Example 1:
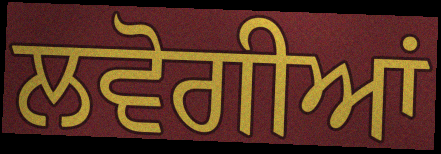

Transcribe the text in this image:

ਲਵੋਗੀਆਂ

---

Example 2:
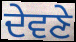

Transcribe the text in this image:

ਦੇਵਣੇ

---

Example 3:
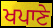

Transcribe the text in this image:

ਖਪਾਣੇ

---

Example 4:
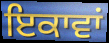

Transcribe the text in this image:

ਇਕਾਵਾਂ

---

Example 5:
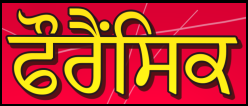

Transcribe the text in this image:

ਫੌਰੈਂਸਿਕ